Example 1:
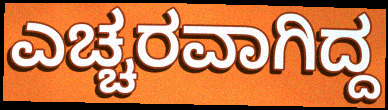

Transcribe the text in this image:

ಎಚ್ಚರವಾಗಿದ್ದ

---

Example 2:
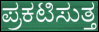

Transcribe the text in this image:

ಪ್ರಕಟಿಸುತ್ತ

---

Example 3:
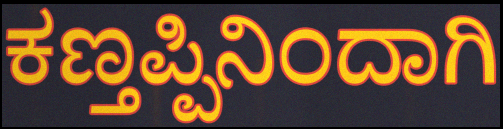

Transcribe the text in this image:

ಕಣ್ತಪ್ಪಿನಿಂದಾಗಿ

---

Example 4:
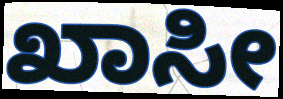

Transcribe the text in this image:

ಖಾಸೀ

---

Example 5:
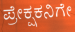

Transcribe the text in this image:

ಪ್ರೇಕ್ಷಕನಿಗೇ